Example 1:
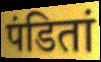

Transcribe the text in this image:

पंडितां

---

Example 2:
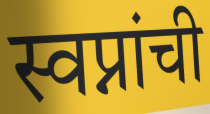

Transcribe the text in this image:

स्वप्नांची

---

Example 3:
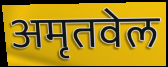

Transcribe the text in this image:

अमृतवेल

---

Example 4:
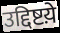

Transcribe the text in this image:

उद्दिष्टय़े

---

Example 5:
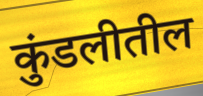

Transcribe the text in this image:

कुंडलीतील